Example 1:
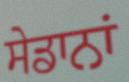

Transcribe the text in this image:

ਸੇਡਾਨਾਂ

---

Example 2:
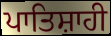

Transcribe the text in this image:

ਪਾਤਿਸ਼ਾਹੀ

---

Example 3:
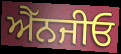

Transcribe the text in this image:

ਐੱਨਜੀਓ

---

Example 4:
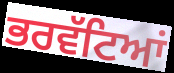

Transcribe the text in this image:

ਭਰਵੱਟਿਆਂ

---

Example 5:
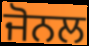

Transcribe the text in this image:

ਜੋਨਲ